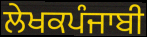
ਲੇਖਕਪੰਜਾਬੀ